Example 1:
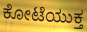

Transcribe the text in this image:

ಕೋಟೆಯುಕ್ತ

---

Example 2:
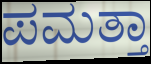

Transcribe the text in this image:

ಪಮತ್ತಾ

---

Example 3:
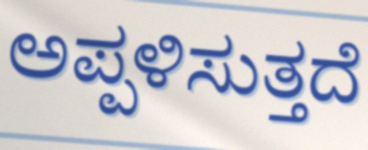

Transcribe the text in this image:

ಅಪ್ಪಳಿಸುತ್ತದೆ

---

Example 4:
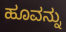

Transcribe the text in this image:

ಹೂವನ್ನು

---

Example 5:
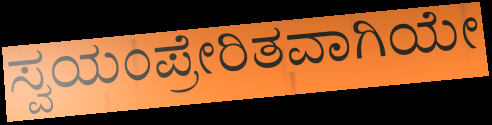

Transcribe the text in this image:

ಸ್ವಯಂಪ್ರೇರಿತವಾಗಿಯೇ